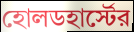
হোলডহার্স্টের